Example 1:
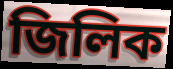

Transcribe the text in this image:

জিলিক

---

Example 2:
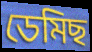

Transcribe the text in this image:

ডেমিছ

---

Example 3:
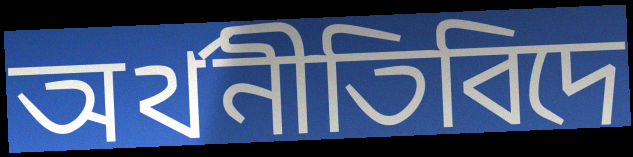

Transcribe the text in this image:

অৰ্থনীতিবিদে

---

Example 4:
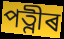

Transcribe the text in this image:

পত্নীৰ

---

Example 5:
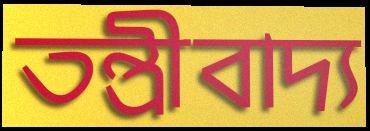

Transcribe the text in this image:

তন্ত্ৰীবাদ্য